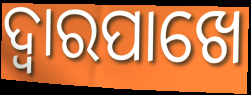
ଦ୍ୱାରପାଖେ